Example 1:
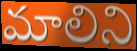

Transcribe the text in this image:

మాలిని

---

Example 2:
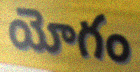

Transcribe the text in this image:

యోగం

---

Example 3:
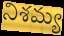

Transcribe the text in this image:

నిశమ్య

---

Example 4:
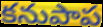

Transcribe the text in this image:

కనుపాప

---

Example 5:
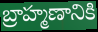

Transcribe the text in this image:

బ్రాహ్మణానికి